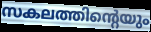
സകലത്തിന്റെയും